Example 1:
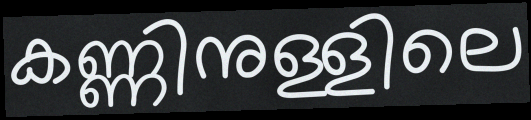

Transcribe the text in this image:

കണ്ണിനുള്ളിലെ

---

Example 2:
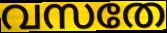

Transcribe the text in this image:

വസതേ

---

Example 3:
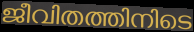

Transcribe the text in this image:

ജീവിതത്തിനിടെ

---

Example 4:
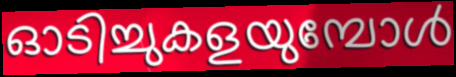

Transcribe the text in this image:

ഓടിച്ചുകളയുമ്പോൾ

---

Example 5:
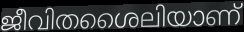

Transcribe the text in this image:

ജീവിതശൈലിയാണ്